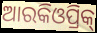
ଆରକିଓପ୍ରିକ୍